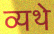
व्यथे